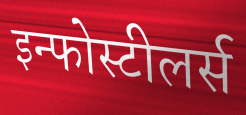
इन्फोस्टीलर्स